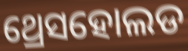
ଥ୍ରେସହୋଲଡ